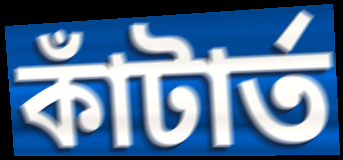
কাঁটার্ত